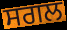
ਸਗਲ